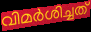
വിമർശിച്ചത്